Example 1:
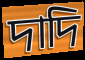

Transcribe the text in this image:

দাদি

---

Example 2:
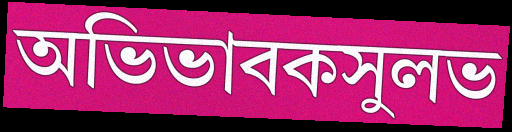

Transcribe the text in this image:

অভিভাবকসুলভ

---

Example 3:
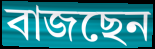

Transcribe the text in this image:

বাজছেন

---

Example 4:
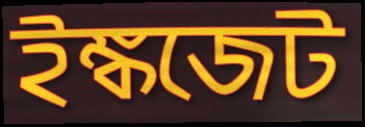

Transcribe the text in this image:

ইঙ্কজেট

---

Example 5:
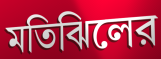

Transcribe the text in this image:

মতিঝিলের